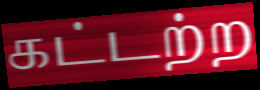
கட்டற்ற